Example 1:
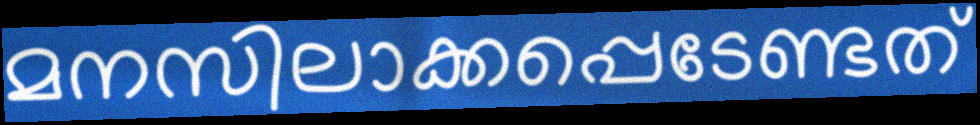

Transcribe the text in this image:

മനസിലാക്കപ്പെടേണ്ടത്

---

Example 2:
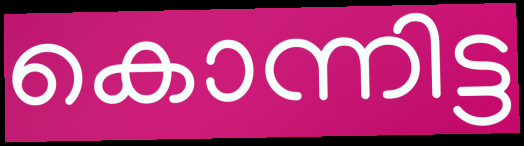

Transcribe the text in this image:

കൊന്നിട്ട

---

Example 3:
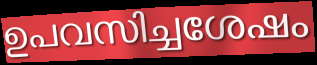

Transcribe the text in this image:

ഉപവസിച്ചശേഷം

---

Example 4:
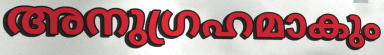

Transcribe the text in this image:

അനുഗ്രഹമാകും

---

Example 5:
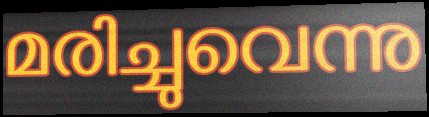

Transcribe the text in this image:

മരിച്ചുവെന്നു